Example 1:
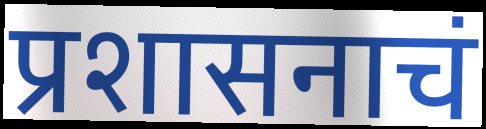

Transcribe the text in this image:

प्रशासनाचं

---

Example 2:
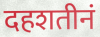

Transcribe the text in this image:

दहशतीनं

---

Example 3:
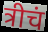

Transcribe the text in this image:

त्रीचं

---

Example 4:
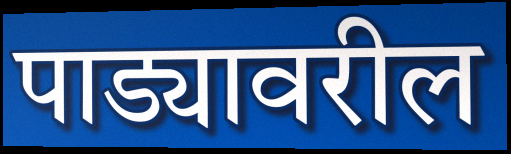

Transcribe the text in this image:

पाड्यावरील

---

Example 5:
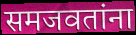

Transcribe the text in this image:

समजवतांना